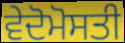
ਵੇਦੋਮੋਸਤੀ